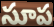
సూప